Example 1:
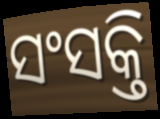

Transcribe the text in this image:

ସଂସକ୍ତି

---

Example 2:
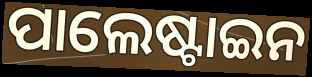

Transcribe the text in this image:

ପାଲେଷ୍ଟାଇନ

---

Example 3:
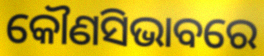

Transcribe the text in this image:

କୌଣସିଭାବରେ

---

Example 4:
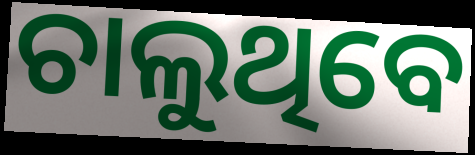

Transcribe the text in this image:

ଚାଲୁଥିବେ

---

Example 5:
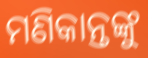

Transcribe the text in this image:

ମଣିକାନ୍ତଙ୍କୁ